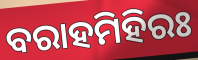
ବରାହମିହିରଃ